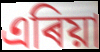
এৰিয়া